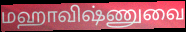
மஹாவிஷ்ணுவை